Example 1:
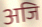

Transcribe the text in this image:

अजि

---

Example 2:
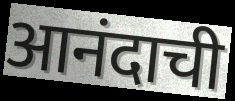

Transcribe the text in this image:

आनंदाची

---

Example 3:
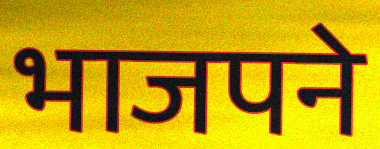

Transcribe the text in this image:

भाजपने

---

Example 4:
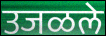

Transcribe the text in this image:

उजळले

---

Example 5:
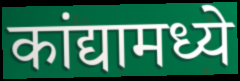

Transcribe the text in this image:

कांद्यामध्ये